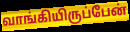
வாங்கியிருப்பேன்